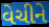
વેચીને